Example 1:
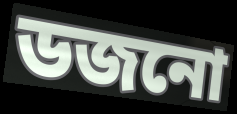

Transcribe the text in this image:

ডজনো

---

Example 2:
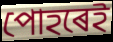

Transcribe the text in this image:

পোহৰেই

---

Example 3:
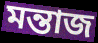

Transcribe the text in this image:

মন্তাজ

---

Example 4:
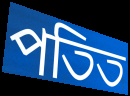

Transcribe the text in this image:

পতিত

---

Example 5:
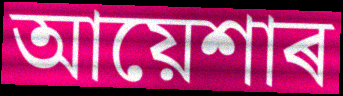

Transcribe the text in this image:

আয়েশাৰ